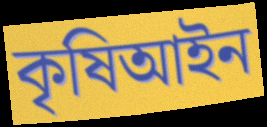
কৃষিআইন